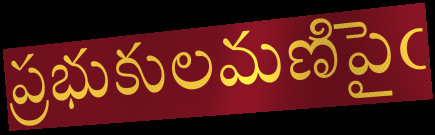
ప్రభుకులమణిపైఁ